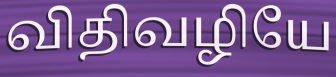
விதிவழியே